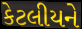
કેટલીયને